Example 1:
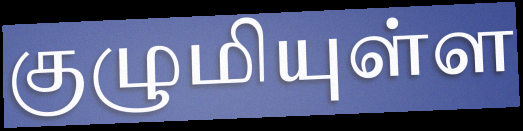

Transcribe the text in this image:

குழுமியுள்ள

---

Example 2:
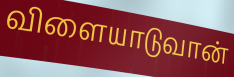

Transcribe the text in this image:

விளையாடுவான்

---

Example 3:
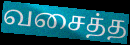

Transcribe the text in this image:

வசைத்த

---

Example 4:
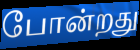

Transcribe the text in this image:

போன்றது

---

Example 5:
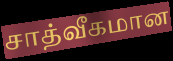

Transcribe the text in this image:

சாத்வீகமான